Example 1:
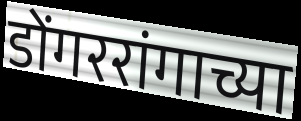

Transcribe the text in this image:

डोंगररांगाच्या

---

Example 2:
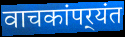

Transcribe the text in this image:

वाचकांपर्यंत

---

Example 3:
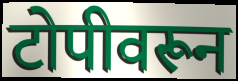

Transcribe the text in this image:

टोपीवरून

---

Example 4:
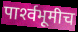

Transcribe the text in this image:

पार्श्वभूमीच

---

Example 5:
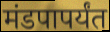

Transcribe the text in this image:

मंडपापर्यंत